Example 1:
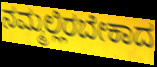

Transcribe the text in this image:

ನಮ್ಮಲ್ಲಿರಬೇಕಾದ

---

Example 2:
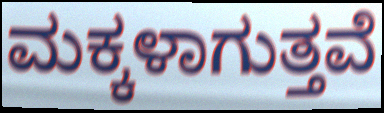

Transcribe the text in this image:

ಮಕ್ಕಳಾಗುತ್ತವೆ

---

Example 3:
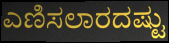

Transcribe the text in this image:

ಎಣಿಸಲಾರದಷ್ಟು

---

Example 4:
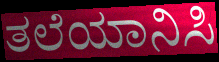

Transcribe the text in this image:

ತಲೆಯಾನಿಸಿ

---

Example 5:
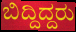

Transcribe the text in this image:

ಬಿದ್ದಿದ್ದರು